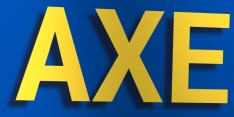
AXE